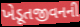
ખેડૂતજીવનની